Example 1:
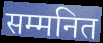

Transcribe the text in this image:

सम्मनित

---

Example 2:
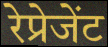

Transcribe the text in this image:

रेप्रेजेंट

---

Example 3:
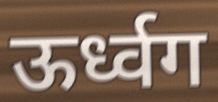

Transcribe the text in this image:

ऊर्ध्वग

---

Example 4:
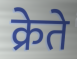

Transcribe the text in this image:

क्रेते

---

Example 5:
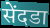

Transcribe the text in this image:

सेंदडा